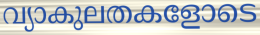
വ്യാകുലതകളോടെ